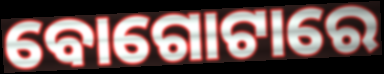
ବୋଗୋଟାରେ